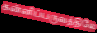
கன்னிப்பருவத்திலே